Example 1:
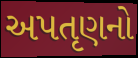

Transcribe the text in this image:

અપતૃણનો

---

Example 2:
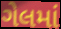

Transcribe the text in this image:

ગેલમાં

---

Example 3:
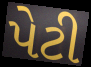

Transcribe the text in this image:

પેટી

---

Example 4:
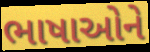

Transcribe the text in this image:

ભાષાઓને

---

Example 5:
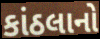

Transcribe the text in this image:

કાંઠલાનો